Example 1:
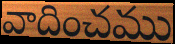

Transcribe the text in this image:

వాదించము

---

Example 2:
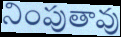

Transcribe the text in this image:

నింపుతావు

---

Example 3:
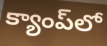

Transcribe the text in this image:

క్యాంప్‌లో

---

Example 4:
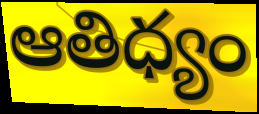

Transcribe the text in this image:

ఆతిధ్యం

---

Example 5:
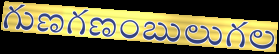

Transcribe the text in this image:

గుణగణంబులుగల